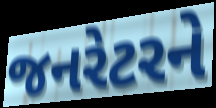
જનરેટરને